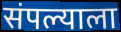
संपल्याला